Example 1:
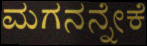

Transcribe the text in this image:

ಮಗನನ್ನೇಕೆ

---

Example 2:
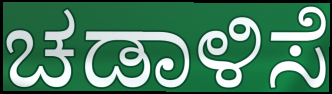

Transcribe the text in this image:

ಚಡಾಳಿಸೆ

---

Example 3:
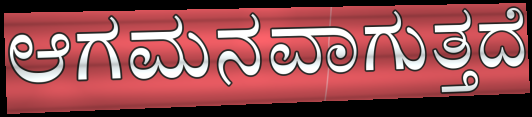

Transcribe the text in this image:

ಆಗಮನವಾಗುತ್ತದೆ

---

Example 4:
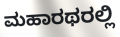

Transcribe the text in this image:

ಮಹಾರಥರಲ್ಲಿ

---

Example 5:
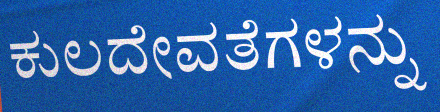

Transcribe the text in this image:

ಕುಲದೇವತೆಗಳನ್ನು